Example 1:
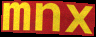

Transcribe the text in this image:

mnx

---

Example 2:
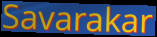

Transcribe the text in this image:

Savarakar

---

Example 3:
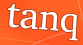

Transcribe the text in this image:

tanq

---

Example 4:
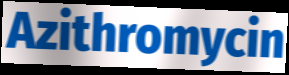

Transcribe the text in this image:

Azithromycin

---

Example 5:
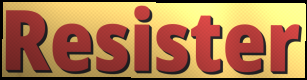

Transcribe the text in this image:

Resister